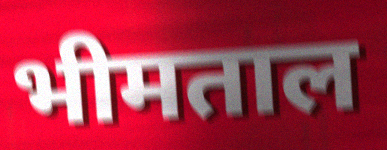
भीमताल